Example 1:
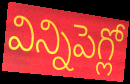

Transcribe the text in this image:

విన్నిపెగ్లో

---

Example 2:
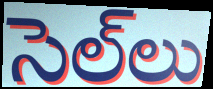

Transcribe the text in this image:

సెల్‌లు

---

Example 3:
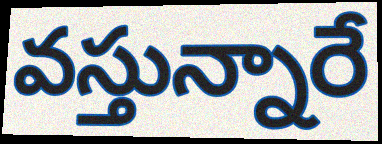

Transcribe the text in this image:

వస్తున్నారే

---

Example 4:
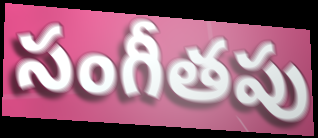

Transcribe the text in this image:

సంగీతపు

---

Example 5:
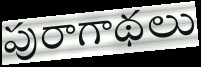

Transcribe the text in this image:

పురాగాథలు